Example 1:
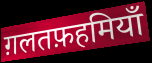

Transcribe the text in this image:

ग़लतफ़हमियाँ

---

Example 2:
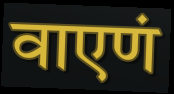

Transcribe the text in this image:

वाएणं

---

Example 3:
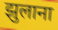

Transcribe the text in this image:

झुलाना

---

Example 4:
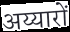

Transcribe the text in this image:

अय्यारों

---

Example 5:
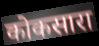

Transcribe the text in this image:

कोकसारा